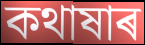
কথাষাৰ